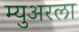
म्युअरला